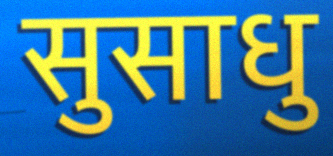
सुसाधु